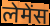
लेमेंस